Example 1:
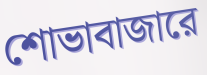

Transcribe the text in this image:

শোভাবাজারে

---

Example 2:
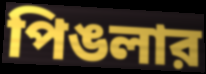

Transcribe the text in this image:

পিঙলার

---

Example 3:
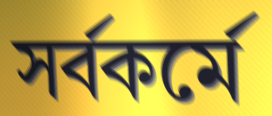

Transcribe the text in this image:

সর্বকর্মে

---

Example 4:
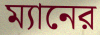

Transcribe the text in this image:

ম্যানের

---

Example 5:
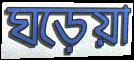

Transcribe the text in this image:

ঘড়েয়া